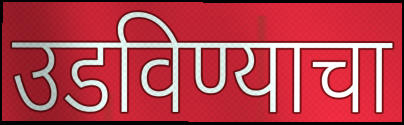
उडविण्याचा